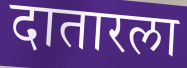
दातारला